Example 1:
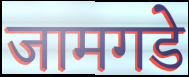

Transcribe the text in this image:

जामगडे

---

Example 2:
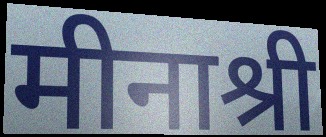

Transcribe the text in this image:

मीनाश्री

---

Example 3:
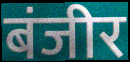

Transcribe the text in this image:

बंजीर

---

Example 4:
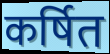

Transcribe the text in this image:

कर्षित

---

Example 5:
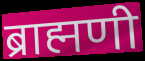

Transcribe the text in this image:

ब्राह्मणी